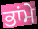
ਭਾਂਮੇ